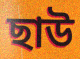
ছাউ